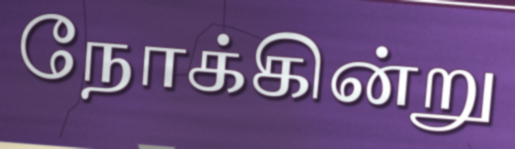
நோக்கின்று